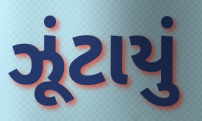
ઝૂંટાયું